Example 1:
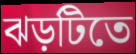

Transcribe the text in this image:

ঝড়টিতে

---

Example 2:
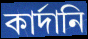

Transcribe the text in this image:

কার্দানি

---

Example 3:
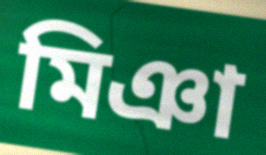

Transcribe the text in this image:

মিঞা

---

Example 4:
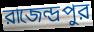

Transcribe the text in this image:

রাজেন্দ্রপুর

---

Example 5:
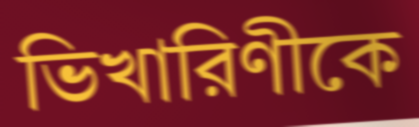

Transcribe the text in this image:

ভিখারিণীকে